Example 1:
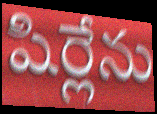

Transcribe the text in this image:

షిర్లేను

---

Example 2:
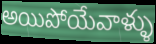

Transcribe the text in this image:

అయిపోయేవాళ్ళు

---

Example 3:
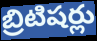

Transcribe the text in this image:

బ్రిటిషర్లు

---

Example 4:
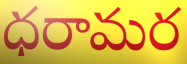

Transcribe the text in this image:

ధరామర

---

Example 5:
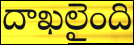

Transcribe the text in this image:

దాఖలైంది